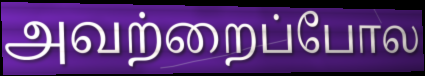
அவற்றைப்போல